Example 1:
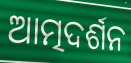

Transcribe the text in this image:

ଆତ୍ମଦର୍ଶନ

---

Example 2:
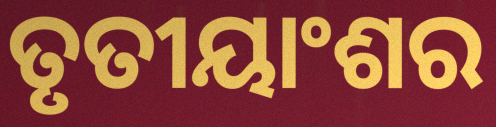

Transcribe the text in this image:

ତୃତୀୟାଂଶର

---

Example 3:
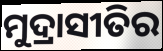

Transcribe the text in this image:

ମୁଦ୍ରାସୀତିର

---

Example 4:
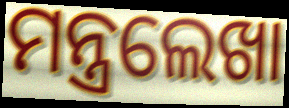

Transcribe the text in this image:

ମନ୍ତ୍ରଲେଖା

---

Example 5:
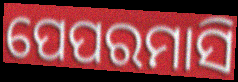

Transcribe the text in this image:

ପେପରମାସି